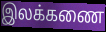
இலக்கணை